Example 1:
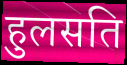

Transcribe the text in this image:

हुलसति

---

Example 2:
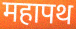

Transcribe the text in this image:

महापथ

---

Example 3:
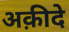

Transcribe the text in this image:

अक़ीदे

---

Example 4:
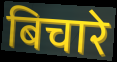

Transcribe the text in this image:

बिचारे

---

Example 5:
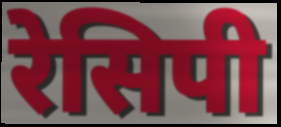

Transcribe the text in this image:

रेसिपी